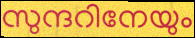
സുന്ദറിനേയും